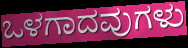
ಒಳಗಾದವುಗಳು